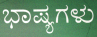
ಭಾಷ್ಯಗಳು